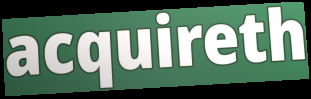
acquireth